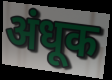
अंधूक